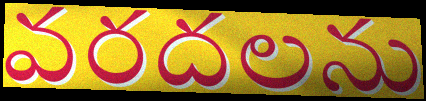
వరదలను